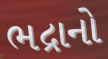
ભદ્રાનો